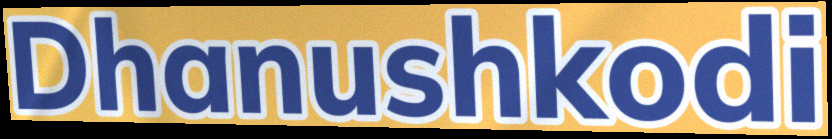
Dhanushkodi